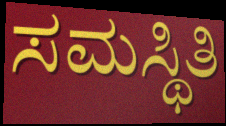
ಸಮಸ್ಥಿತಿ